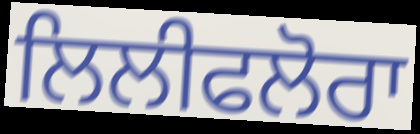
ਲਿਲੀਫਲੋਰਾ